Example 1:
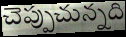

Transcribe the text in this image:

చెప్పుచున్నది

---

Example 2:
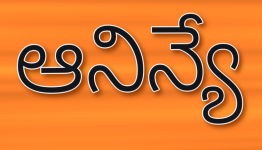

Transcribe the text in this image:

ఆనిన్యే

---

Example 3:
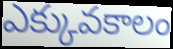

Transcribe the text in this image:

ఎక్కువకాలం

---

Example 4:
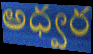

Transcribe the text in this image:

అధ్వర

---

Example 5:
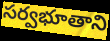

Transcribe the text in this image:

సర్వభూతాని